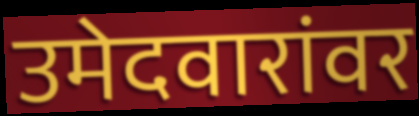
उमेदवारांवर